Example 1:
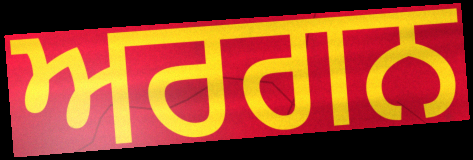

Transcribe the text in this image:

ਅਰਗਨ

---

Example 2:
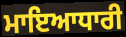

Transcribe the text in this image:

ਮਾਇਆਧਾਰੀ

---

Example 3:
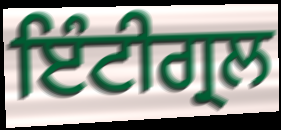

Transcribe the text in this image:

ਇੰਟੀਗ੍ਰਲ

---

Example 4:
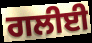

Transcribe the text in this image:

ਗਲੀਈ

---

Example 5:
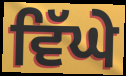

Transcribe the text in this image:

ਵਿੱਘੇ